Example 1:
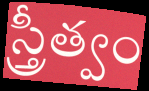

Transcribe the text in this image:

స్త్రీత్వం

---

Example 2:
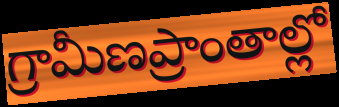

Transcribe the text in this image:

గ్రామీణప్రాంతాల్లో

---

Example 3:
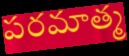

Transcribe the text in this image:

పరమాత్మ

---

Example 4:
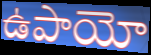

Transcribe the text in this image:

ఉపాయో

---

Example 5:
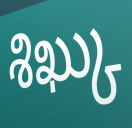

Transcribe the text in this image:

శిఖ్కు